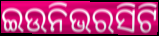
ଇଉନିଭରସିଟି